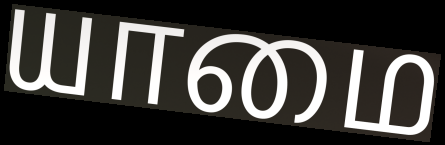
யாமை